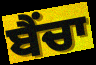
ਬੈਂਚਾ